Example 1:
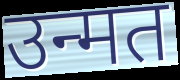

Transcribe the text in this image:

उन्मत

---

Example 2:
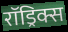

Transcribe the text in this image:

रॉड्रिक्स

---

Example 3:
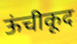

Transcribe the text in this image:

ऊंचीकूद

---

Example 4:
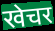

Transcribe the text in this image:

खेचर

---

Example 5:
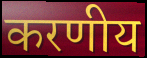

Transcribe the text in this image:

करणीय